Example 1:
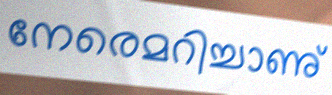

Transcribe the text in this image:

നേരെമറിച്ചാണു്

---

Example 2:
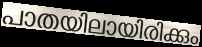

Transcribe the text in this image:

പാതയിലായിരിക്കും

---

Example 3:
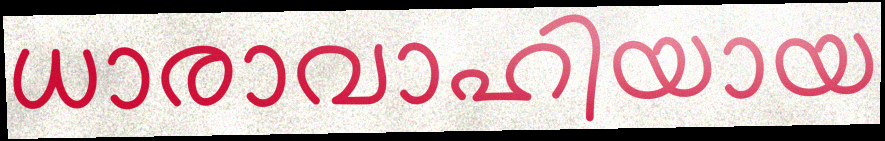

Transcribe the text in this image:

ധാരാവാഹിയായ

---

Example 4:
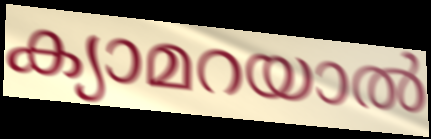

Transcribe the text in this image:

ക്യാമറയാൽ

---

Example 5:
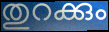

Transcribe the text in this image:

തുറക്കും